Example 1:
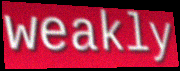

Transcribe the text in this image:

weakly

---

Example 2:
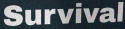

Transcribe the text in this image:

Survival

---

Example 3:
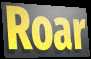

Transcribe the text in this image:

Roar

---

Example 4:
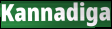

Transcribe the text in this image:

Kannadiga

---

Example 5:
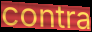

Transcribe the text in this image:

contra